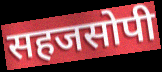
सहजसोपी